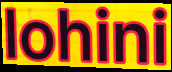
lohini